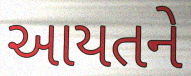
આયતને